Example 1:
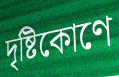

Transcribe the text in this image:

দৃষ্টিকোণে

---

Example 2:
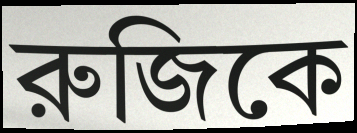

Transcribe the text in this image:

রুজিকে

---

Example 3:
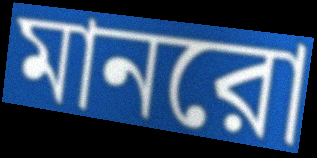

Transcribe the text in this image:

মানরো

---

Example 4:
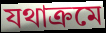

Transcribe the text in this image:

যথাক্রমে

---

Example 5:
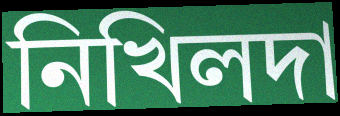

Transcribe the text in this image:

নিখিলদা